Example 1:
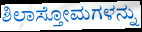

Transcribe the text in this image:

ಶಿಲಾಸ್ತೋಮಗಳನ್ನು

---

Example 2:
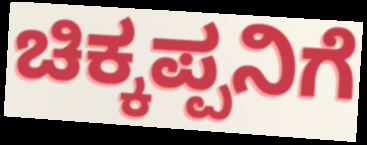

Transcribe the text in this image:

ಚಿಕ್ಕಪ್ಪನಿಗೆ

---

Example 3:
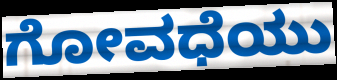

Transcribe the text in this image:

ಗೋವಧೆಯು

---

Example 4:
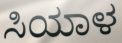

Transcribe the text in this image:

ಸಿಯಾಳ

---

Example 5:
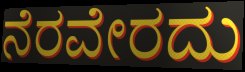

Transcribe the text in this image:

ನೆರವೇರದು